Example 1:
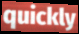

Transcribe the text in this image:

quickly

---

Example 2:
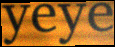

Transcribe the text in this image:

yeye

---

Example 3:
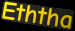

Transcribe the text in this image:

Eththa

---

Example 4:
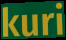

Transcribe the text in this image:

kuri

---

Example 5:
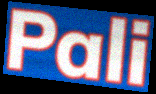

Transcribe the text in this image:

Pali